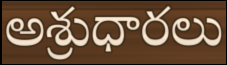
అశ్రుధారలు